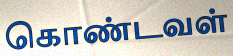
கொண்டவள்